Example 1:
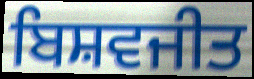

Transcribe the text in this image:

ਬਿਸ਼ਵਜੀਤ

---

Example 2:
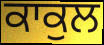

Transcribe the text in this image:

ਕਾਕੁਲ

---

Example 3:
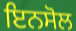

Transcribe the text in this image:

ਇਨਸੋਲ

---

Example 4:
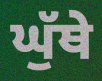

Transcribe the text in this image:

ਘੁੱਥੇ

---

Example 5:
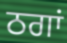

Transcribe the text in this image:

ਠਗਾਂ